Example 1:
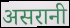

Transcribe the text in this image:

असरानी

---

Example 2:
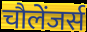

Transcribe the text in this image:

चौलेंजर्स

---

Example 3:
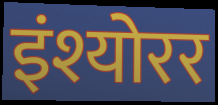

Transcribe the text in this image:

इंश्योरर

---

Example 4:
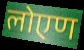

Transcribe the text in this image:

लोएण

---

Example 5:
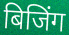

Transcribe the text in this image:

बिजिंग